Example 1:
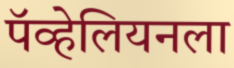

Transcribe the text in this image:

पॅव्हेलियनला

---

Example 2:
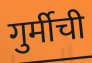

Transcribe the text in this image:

गुर्मीची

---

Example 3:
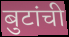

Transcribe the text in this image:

बुटांची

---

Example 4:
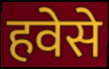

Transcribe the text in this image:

हवेसे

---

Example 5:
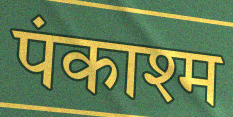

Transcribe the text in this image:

पंकाश्म